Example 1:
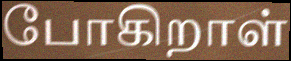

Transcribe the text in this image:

போகிறாள்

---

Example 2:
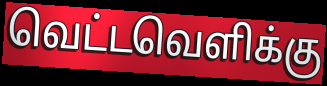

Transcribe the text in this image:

வெட்டவெளிக்கு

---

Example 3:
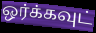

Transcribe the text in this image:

ஒர்க்கவுட்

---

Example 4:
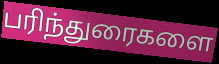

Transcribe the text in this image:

பரிந்துரைகளை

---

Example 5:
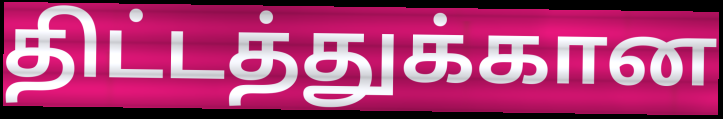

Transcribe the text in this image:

திட்டத்துக்கான